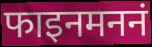
फाइनमननं